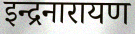
इन्द्रनारायण